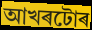
আখৰটোৰ